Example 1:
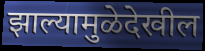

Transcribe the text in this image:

झाल्यामुळेदेखील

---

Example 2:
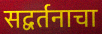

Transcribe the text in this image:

सद्वर्तनाचा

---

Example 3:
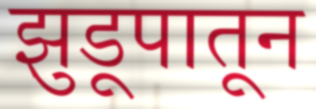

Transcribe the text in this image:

झुडूपातून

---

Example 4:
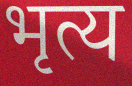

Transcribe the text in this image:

भृत्य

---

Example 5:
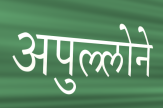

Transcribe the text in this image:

अपुल्लोने